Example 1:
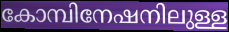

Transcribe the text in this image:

കോമ്പിനേഷനിലുള്ള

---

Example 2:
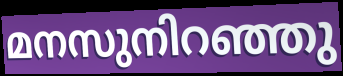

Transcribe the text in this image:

മനസുനിറഞ്ഞു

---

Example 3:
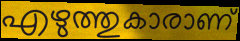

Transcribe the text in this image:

എഴുത്തുകാരാണ്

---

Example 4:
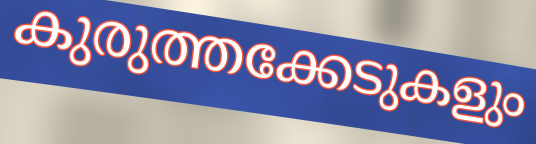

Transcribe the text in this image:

കുരുത്തക്കേടുകളും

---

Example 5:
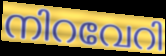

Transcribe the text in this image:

നിറവേറി